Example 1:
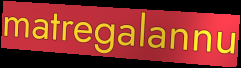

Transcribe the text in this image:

matregalannu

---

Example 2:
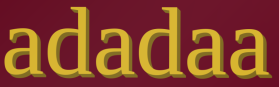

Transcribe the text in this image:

adadaa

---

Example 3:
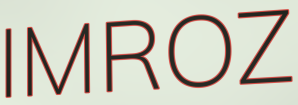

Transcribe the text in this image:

IMROZ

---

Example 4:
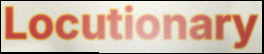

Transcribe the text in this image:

Locutionary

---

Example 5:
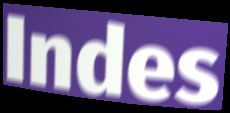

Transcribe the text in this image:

Indes